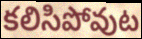
కలిసిపోవుట